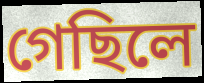
গেছিলে